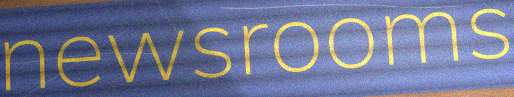
newsrooms